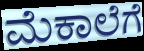
ಮೆಕಾಲೆಗೆ